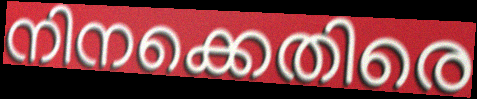
നിനക്കെതിരെ